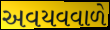
અવયવવાળે